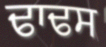
ਢਾਢਸ